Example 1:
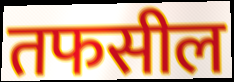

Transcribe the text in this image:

तफसील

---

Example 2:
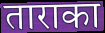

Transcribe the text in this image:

ताराका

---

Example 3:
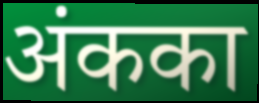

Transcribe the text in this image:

अंकका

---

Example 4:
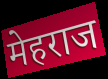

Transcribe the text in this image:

मेहराज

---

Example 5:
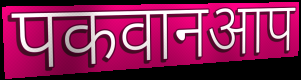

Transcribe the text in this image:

पकवानआप